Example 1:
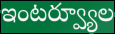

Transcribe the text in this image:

ఇంటర్వ్యూల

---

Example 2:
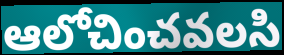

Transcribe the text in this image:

ఆలోచించవలసి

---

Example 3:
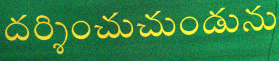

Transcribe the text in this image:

దర్శించుచుండును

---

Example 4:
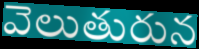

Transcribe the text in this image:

వెలుతురున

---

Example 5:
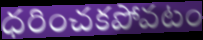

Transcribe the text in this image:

ధరించకపోవటం